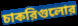
চাকরিগুলোর